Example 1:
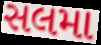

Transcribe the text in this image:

સલમા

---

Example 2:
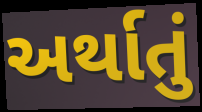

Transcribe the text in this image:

અર્થાતું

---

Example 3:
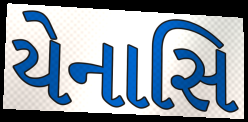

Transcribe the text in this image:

યેનાસિ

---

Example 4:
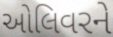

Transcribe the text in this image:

ઓલિવરને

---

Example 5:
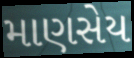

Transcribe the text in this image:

માણસેય